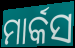
ମାର୍କସ